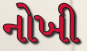
નોખી